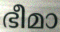
ഭീമാ